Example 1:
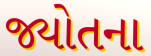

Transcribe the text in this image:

જ્યોતના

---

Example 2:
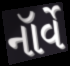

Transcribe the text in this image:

નૉર્વે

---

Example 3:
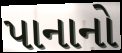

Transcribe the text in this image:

પાનાનો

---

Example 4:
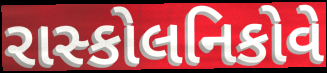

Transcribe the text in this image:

રાસ્કોલનિકોવે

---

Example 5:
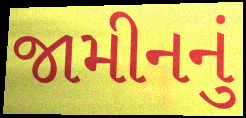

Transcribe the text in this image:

જામીનનું